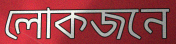
লোকজনে